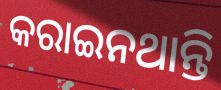
କରାଇନଥାନ୍ତି